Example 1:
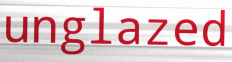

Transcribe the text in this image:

unglazed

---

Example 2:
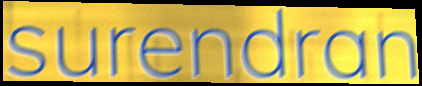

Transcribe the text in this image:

surendran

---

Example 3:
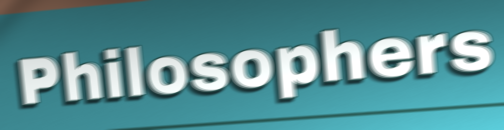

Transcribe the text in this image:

Philosophers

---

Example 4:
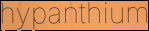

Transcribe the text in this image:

hypanthium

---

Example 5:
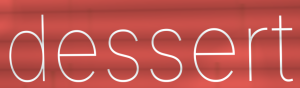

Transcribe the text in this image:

dessert